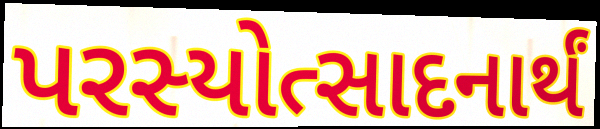
પરસ્યોત્સાદનાર્થં